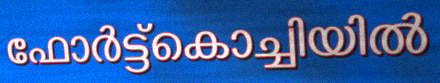
ഫോർട്ട്കൊച്ചിയിൽ